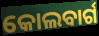
କୋଲବାର୍ଗ